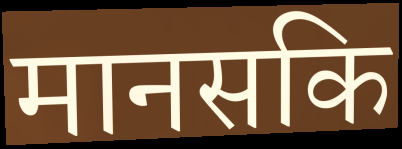
मानसकि